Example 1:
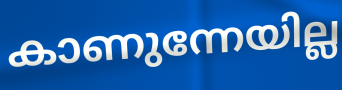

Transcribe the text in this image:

കാണുന്നേയില്ല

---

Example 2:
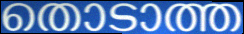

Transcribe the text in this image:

തൊടാത്ത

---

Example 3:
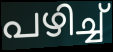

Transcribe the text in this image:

പഴിച്ച്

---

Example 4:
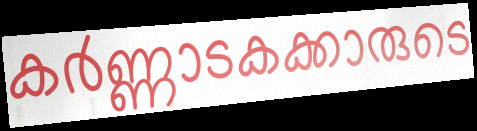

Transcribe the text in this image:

കർണ്ണാടകക്കാരുടെ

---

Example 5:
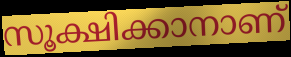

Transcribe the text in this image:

സൂക്ഷിക്കാനാണ്